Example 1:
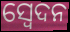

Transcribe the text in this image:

ସ୍ଵେଦନ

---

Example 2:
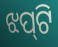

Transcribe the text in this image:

ଝପ୍‌ଟି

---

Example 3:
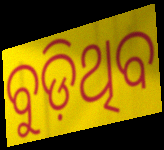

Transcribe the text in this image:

ବୁଡ଼ିଥିବ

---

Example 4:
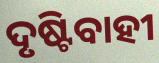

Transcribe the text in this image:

ଦୃଷ୍ଟିବାହୀ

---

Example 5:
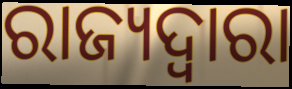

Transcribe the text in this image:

ରାଜ୍ୟଦ୍ୱାରା